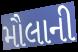
મૌલાની